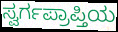
ಸ್ವರ್ಗಪ್ರಾಪ್ತಿಯ